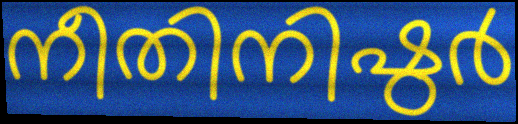
നീതിനിഷ്ഠർ